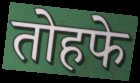
तोहफे